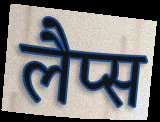
लैप्स